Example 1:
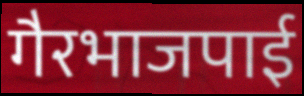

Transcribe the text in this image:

गैरभाजपाई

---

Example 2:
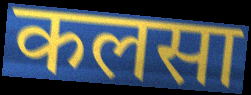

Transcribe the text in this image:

कलसा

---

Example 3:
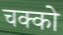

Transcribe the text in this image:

चक्को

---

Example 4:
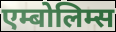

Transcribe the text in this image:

एम्बोलिम्स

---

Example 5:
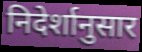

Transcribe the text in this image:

निदेर्शानुसार